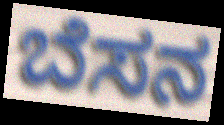
ಬೆಸನ